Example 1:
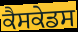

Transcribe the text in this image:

ਕੈਸਕੇਡਸ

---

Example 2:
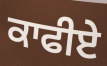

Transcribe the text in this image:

ਕਾਫੀਏ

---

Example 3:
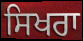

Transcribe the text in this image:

ਸਿਖਰਾ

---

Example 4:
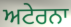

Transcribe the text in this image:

ਅਟੇਰਨਾ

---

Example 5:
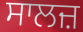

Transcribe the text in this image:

ਸਾਲਜ਼